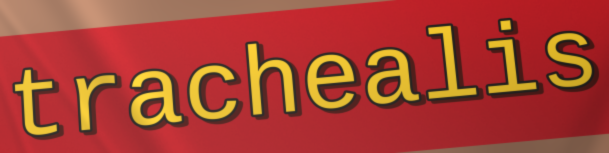
trachealis